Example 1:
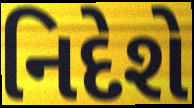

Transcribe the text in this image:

નિદેશે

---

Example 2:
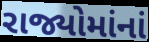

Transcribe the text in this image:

રાજ્યોમાંનાં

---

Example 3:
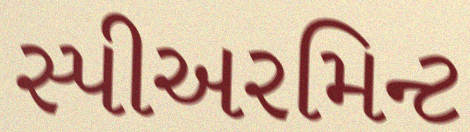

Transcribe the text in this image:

સ્પીઅરમિન્ટ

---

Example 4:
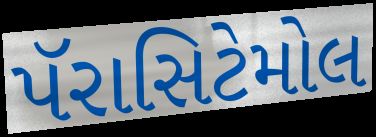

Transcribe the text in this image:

પૅરાસિટેમોલ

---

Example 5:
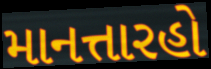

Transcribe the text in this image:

માનત્તારહો